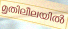
മൃതിലീലയിൽ